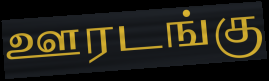
ஊரடங்கு